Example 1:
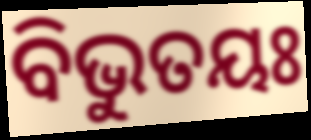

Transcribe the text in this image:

ବିଭୁତୟଃ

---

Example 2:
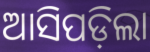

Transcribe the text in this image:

ଆସିପଡ଼ିଲା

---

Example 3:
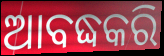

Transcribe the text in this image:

ଆବଦ୍ଧକରି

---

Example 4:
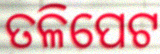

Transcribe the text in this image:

ତଳିପେଟ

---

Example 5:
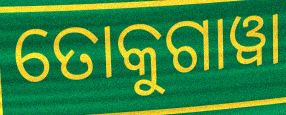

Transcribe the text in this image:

ତୋକୁଗାୱା